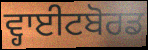
ਵ੍ਹਾਈਟਬੋਰਡ